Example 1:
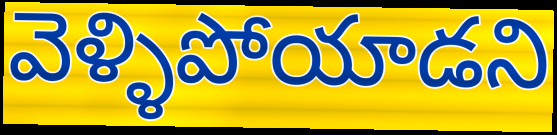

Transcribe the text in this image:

వెళ్ళిపోయాడని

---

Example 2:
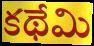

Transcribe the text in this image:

కథేమి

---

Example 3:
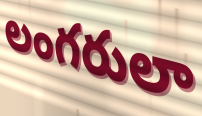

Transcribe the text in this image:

లంగరులా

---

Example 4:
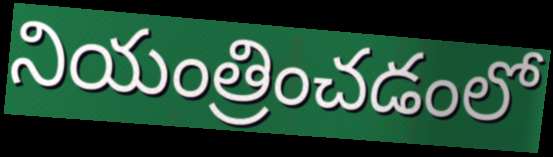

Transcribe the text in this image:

నియంత్రించడంలో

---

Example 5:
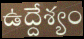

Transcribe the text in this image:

ఉద్దేశ్యం